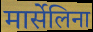
मार्सेलिना